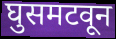
घुसमटवून